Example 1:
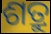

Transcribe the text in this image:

ଶତ୍ରୁ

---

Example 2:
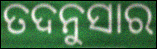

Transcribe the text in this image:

ତଦନୁସାର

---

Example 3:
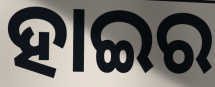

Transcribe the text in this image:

ହାଇର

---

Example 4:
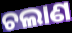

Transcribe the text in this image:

ଚଲାଣ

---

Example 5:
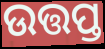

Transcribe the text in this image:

ଉତ୍ତପ୍ତ